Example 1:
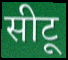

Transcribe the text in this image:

सीटू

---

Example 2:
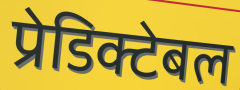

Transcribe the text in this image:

प्रेडिक्टेबल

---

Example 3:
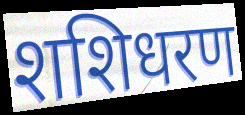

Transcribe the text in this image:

शशिधरण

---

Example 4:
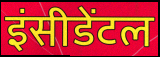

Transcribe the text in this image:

इंसीडेंटल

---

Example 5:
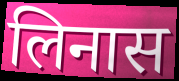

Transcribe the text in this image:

लिनास